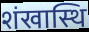
शंखास्थि